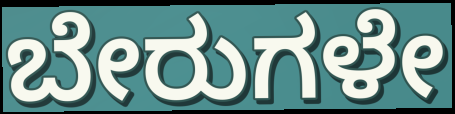
ಬೇರುಗಳೇ